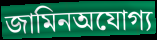
জামিনঅযোগ্য